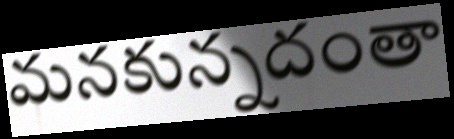
మనకున్నదంతా